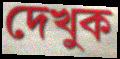
দেখুক